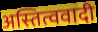
अस्तित्ववादी